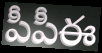
పీపీఈ